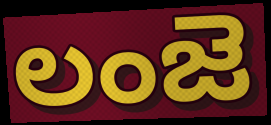
లంజె